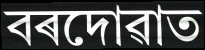
বৰদোৱাত